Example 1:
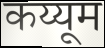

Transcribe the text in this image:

कय्यूम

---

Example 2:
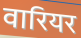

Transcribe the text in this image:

वारियर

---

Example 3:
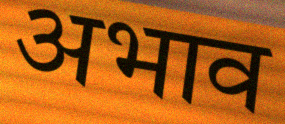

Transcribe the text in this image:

अभाव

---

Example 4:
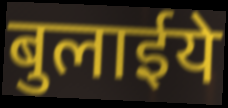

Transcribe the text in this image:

बुलाईये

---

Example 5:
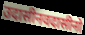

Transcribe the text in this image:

उदासीनवदासीनो